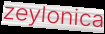
zeylonica